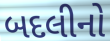
બદલીનો